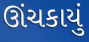
ઊંચકાયું